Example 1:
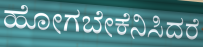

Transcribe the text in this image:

ಹೋಗಬೇಕೆನಿಸಿದರೆ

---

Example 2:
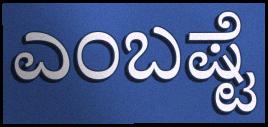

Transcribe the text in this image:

ಎಂಬಷ್ಟೆ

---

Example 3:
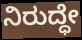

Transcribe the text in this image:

ನಿರುದ್ಧೇ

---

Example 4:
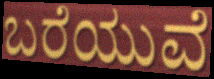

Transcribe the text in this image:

ಬರೆಯುವೆ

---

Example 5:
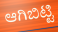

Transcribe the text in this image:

ಆಗಿಬಿಟ್ಟಿ